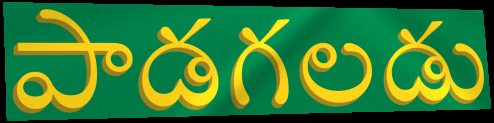
పాడగలడు